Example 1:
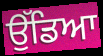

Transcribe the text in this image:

ਉੱਡਿਆ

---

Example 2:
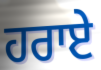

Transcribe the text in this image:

ਹਰਾਏ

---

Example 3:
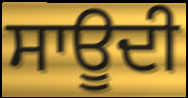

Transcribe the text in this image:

ਸਾਊਦੀ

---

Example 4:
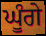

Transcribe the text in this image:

ਘੂੰਗੇ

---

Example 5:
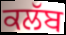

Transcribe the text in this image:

ਕਲੱਬ